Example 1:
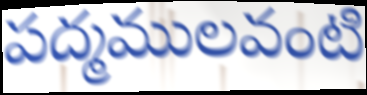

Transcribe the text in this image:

పద్మములవంటి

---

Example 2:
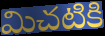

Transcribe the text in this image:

మిచటికి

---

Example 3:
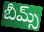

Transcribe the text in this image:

బీమ్స్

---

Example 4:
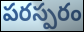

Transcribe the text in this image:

పరస్పరం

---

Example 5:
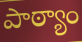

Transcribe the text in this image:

పాఠ్యాం